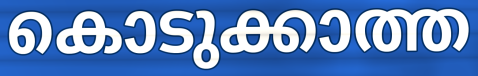
കൊടുക്കാത്ത